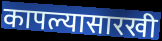
कापल्यासारखी